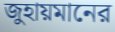
জুহায়মানের